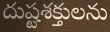
దుష్టశక్తులను